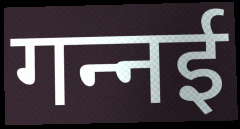
गन्नई